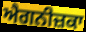
ਐਗਨੀਜ਼ਕਾ